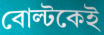
বোল্টকেই